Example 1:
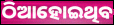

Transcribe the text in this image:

ଠିଆହୋଇଥିବ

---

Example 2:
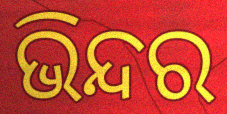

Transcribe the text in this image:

ଭିନ୍ଦର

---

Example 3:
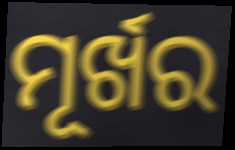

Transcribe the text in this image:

ମୂର୍ଖର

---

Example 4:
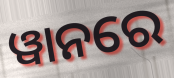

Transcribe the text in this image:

ୱାନରେ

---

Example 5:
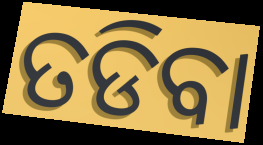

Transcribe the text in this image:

ତଡିବା